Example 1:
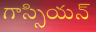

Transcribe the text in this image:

గాస్సియన్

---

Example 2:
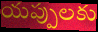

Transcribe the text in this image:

యప్పులకు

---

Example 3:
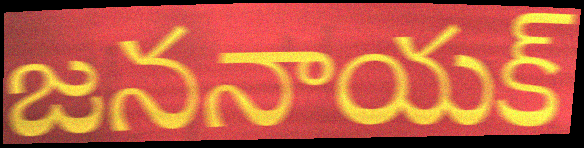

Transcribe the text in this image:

జననాయక్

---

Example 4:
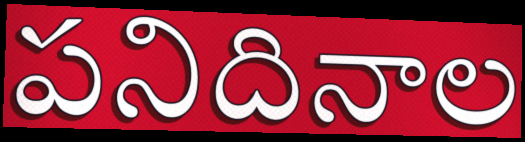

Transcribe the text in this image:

పనిదినాల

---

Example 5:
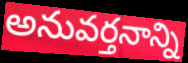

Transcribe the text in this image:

అనువర్తనాన్ని